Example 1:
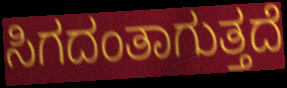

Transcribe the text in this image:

ಸಿಗದಂತಾಗುತ್ತದೆ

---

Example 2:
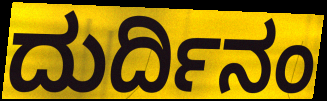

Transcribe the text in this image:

ದುರ್ದಿನಂ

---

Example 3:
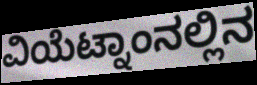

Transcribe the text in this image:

ವಿಯೆಟ್ನಾಂನಲ್ಲಿನ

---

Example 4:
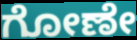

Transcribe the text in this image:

ಗೋಣೇ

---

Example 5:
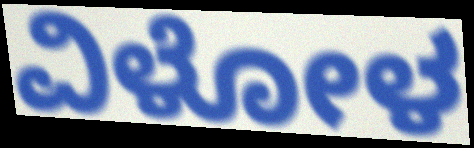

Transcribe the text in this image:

ವಿಳೋಳ